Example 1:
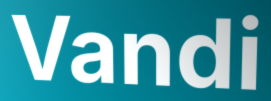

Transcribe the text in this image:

Vandi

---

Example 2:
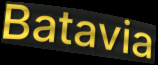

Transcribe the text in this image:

Batavia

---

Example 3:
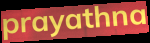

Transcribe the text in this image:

prayathna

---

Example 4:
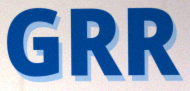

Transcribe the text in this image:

GRR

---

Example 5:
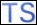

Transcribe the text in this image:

TS